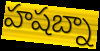
హషబ్నా